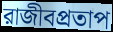
রাজীবপ্রতাপ